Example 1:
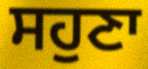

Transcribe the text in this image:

ਸਹੁਣਾ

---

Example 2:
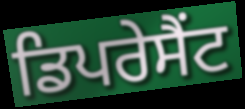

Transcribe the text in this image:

ਡਿਪਰੇਸੈਂਟ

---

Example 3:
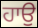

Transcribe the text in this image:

ਹਾਉ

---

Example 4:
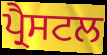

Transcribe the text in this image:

ਪ੍ਰੈਸਟਲ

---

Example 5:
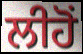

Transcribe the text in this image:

ਲੀਹੋਂ